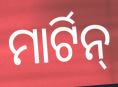
ମାର୍ଟିନ୍